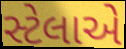
સ્ટેલાએ